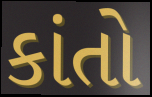
કાંતો